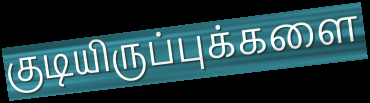
குடியிருப்புக்களை